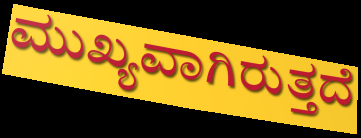
ಮುಖ್ಯವಾಗಿರುತ್ತದೆ